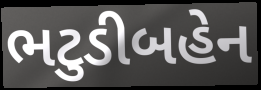
ભટુડીબહેન